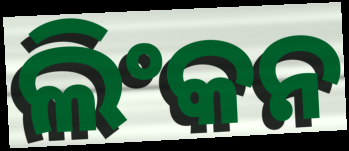
ଲିଂକନ